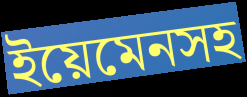
ইয়েমেনসহ